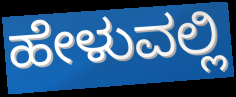
ಹೇಳುವಲ್ಲಿ